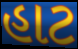
હાટ